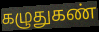
கழுதுகண்